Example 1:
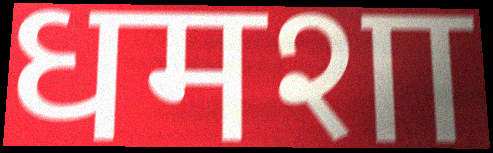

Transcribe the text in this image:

धमशा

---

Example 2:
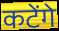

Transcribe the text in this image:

कटेंगे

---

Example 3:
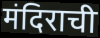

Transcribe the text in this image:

मंदिराची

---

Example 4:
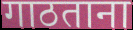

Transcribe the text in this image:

गाठताना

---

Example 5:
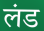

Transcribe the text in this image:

लंड